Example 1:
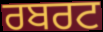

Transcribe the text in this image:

ਰਬਰਟ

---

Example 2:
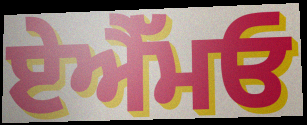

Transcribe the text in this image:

ਏਐੱਮਓ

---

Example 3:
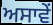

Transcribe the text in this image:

ਅਸਾਵੇਂ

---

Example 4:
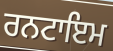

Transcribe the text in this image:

ਰਨਟਾਇਮ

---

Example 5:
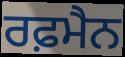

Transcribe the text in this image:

ਰਫ਼ਮੈਨ